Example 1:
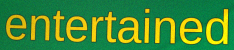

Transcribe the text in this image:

entertained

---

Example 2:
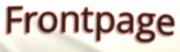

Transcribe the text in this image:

Frontpage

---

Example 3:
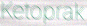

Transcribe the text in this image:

Ketoprak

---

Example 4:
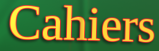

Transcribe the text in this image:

Cahiers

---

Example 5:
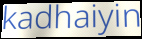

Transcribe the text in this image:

kadhaiyin